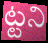
ట్టని